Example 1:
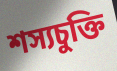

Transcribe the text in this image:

শস্যচুক্তি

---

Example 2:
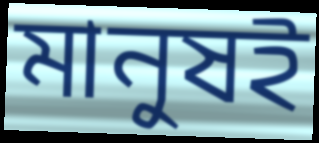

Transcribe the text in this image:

মানুষই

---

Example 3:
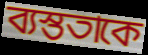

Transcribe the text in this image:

ব্যস্ততাকে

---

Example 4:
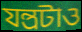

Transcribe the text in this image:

যন্ত্রটাও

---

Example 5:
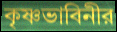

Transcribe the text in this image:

কৃষ্ণভাবিনীর